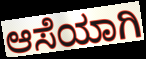
ಆಸೆಯಾಗಿ